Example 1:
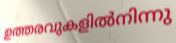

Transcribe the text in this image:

ഉത്തരവുകളിൽനിന്നു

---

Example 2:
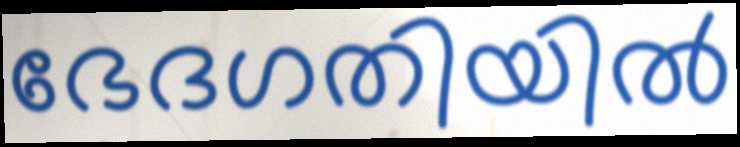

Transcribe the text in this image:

ഭേദഗതിയിൽ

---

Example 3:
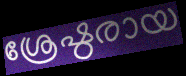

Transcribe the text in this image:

ശ്രേഷ്ഠരായ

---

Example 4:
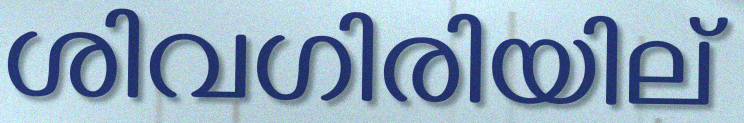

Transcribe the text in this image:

ശിവഗിരിയില്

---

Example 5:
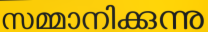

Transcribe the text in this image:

സമ്മാനിക്കുന്നു